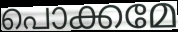
പൊക്കമേ